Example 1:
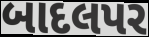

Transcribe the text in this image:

બાદલપર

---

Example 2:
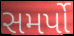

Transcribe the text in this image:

સમર્પો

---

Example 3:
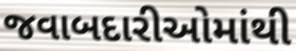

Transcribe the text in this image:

જવાબદારીઓમાંથી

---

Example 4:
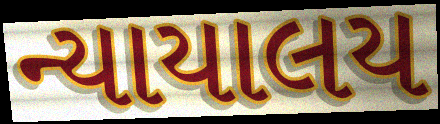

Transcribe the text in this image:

ન્યાયાલય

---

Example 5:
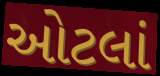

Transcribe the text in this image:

ઓટલાં